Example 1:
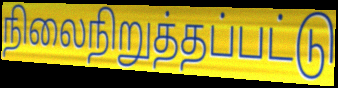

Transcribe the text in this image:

நிலைநிறுத்தப்பட்டு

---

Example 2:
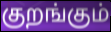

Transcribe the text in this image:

குறங்கும்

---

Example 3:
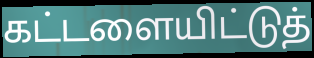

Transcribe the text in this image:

கட்டளையிட்டுத்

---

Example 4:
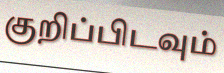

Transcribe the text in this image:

குறிப்பிடவும்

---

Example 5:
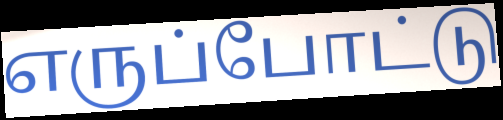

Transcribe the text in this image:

எருப்போட்டு